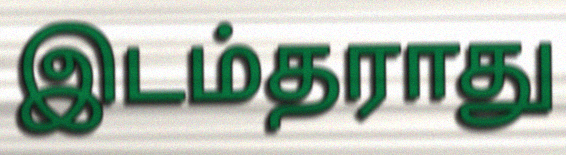
இடம்தராது